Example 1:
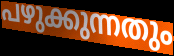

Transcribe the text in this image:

പഴുക്കുന്നതും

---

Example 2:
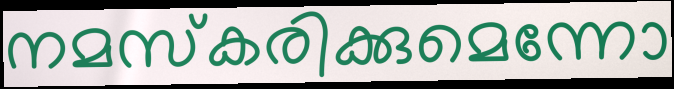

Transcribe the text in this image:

നമസ്കരിക്കുമെന്നോ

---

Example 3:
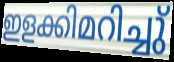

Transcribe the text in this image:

ഇളക്കിമറിച്ചു്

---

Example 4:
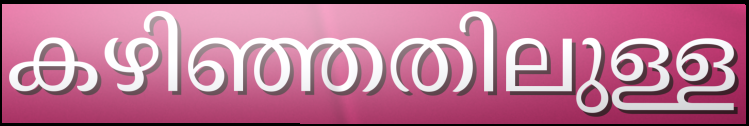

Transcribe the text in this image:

കഴിഞ്ഞതിലുള്ള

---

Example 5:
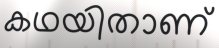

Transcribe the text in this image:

കഥയിതാണ്